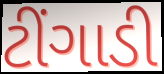
ટીંગાડી